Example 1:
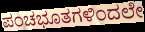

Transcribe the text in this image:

ಪಂಚಭೂತಗಳಿಂದಲೇ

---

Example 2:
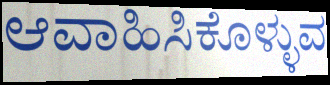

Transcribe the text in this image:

ಆವಾಹಿಸಿಕೊಳ್ಳುವ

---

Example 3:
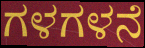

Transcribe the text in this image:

ಗಳಗಳನೆ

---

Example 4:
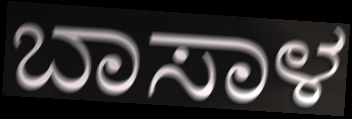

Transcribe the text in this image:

ಬಾಸಾಳ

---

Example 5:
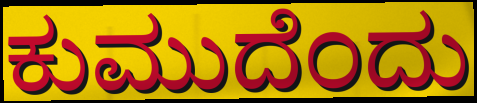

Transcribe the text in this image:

ಕುಮುದೆಂದು